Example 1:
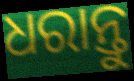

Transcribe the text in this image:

ଧରାନ୍ତୁ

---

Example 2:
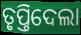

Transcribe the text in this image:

ତୃପ୍ତିଦେଲା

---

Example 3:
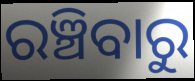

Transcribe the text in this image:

ରଞ୍ଚିବାରୁ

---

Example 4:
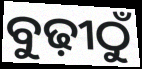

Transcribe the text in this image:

ବୁଢ଼ୀଠୁଁ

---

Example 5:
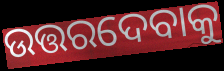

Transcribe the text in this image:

ଉତ୍ତରଦେବାକୁ